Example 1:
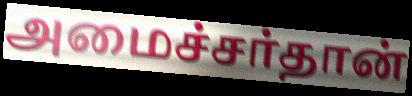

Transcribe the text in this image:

அமைச்சர்தான்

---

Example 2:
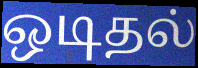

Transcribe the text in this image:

ஒடிதல்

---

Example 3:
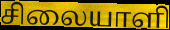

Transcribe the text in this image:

சிலையாளி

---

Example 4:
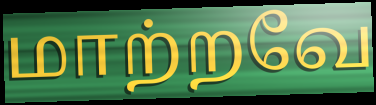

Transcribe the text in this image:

மாற்றவே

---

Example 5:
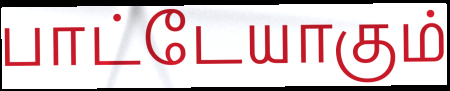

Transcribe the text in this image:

பாட்டேயாகும்